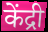
केंद्री